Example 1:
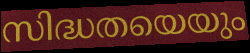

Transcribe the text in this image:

സിദ്ധതയെയും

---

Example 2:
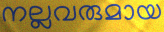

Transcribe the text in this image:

നല്ലവരുമായ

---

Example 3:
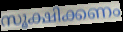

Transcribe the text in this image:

സൂക്ഷിക്കണം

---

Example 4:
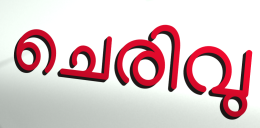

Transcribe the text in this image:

ചെരിവു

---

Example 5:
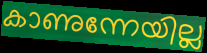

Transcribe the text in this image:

കാണുന്നേയില്ല